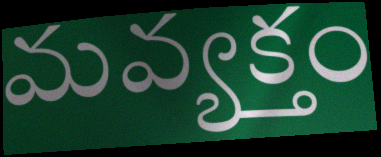
మవ్యక్తం